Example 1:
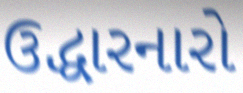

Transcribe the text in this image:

ઉદ્ધારનારો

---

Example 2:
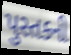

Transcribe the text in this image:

પુસ્તકની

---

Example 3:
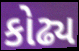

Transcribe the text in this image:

કોઢ્ય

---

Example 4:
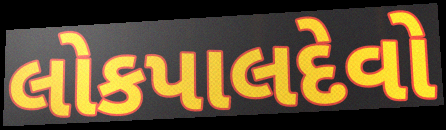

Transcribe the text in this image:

લોકપાલદેવો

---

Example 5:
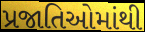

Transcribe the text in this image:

પ્રજાતિઓમાંથી